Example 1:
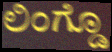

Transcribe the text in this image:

ಲಿಂಗ್ಡೊ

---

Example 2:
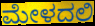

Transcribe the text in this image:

ಮೇಳದಲಿ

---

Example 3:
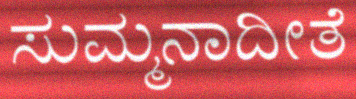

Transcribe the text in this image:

ಸುಮ್ಮನಾದೀತೆ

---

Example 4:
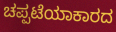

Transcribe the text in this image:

ಚಪ್ಪಟೆಯಾಕಾರದ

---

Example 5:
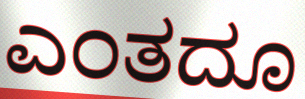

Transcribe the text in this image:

ಎಂತದೂ